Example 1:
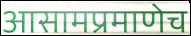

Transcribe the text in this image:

आसामप्रमाणेच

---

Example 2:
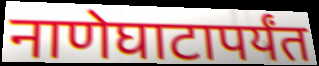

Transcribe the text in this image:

नाणेघाटापर्यंत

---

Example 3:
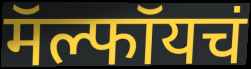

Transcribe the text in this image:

मॅल्फॉयचं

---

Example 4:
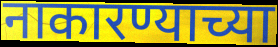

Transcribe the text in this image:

नाकारण्याच्या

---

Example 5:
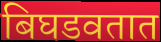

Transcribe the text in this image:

बिघडवतात